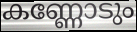
കണ്ണോടും